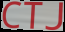
CTJ